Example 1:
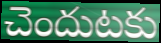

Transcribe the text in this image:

చెందుటకు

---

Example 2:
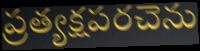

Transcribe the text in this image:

ప్రత్యక్షపరచెను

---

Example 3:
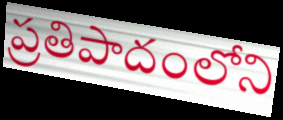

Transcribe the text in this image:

ప్రతిపాదంలోని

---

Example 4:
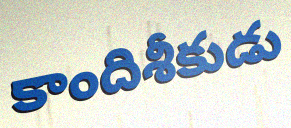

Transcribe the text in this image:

కాందిశీకుడు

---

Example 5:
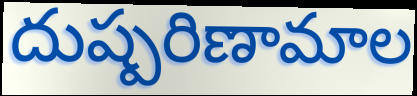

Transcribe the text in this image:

దుష్పరిణామాల